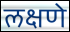
लक्षणे